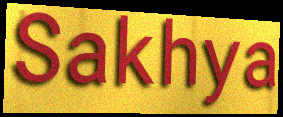
Sakhya